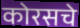
कोरसचे